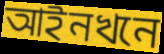
আইনখনে